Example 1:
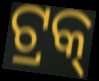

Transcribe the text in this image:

ଟ୍ରକ୍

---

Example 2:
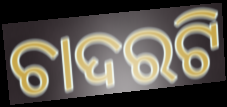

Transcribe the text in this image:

ଚାଦରଟି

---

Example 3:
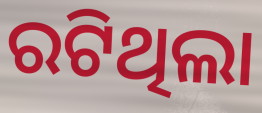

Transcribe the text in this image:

ରଟିଥିଲା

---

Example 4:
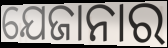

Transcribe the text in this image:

ଯେଜାନାର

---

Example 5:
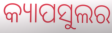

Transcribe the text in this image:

କ୍ୟାପସୁଲର